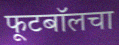
फूटबॉलचा